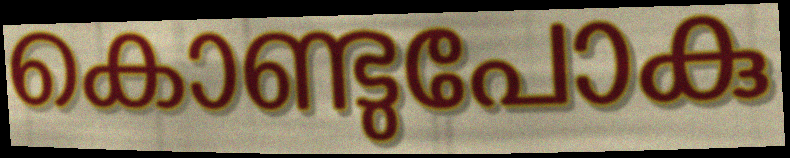
കൊണ്ടുപോകു